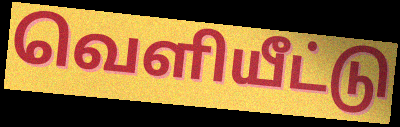
வெளியீட்டு